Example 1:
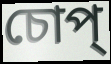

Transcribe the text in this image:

চোপ্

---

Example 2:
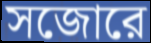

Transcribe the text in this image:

সজোরে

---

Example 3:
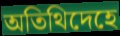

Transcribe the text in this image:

অতিথিদেহে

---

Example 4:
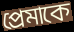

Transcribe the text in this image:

প্রেমাকে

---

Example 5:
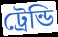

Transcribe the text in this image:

ট্রেন্ডি